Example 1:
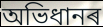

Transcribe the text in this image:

অভিধানৰ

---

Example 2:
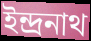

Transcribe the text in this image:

ইন্দ্ৰনাথ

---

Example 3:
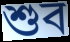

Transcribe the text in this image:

শুব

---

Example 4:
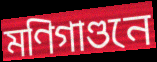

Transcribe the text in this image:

মণিগাণ্ডনে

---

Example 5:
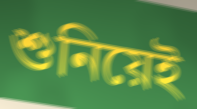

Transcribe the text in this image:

শুনিয়েই